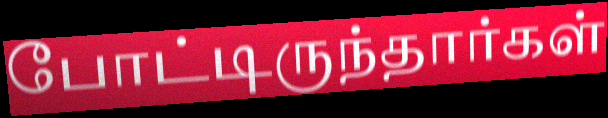
போட்டிருந்தார்கள்